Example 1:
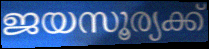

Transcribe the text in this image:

ജയസൂര്യക്ക്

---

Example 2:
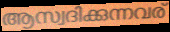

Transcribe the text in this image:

ആസ്വദിക്കുന്നവര്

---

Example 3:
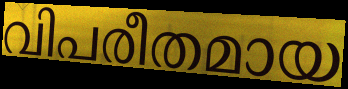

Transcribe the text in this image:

വിപരീതമായ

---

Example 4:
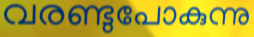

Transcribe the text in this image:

വരണ്ടുപോകുന്നു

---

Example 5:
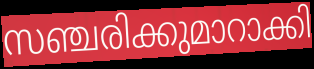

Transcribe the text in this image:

സഞ്ചരിക്കുമാറാക്കി